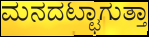
ಮನದಟ್ಟಾಗುತ್ತಾ